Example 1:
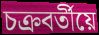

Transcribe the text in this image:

চক্ৰবৰ্তীয়ে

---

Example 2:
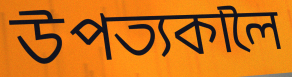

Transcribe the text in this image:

উপত্যকালৈ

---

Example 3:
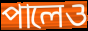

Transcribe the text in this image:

পালেও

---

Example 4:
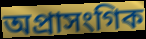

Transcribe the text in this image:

অপ্ৰাসংগিক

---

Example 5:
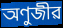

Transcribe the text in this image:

অণুজীৱ